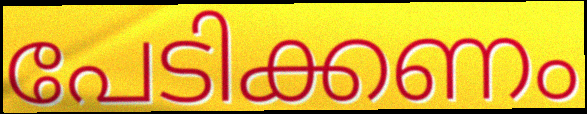
പേടിക്കണം